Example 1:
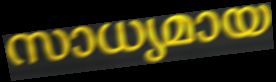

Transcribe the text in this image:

സാധ്യമായ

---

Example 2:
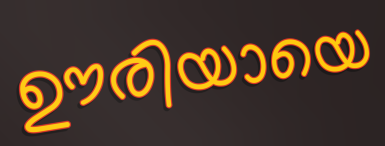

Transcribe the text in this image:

ഊരിയായെ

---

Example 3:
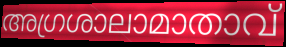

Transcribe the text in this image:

അഗ്രശാലാമാതാവ്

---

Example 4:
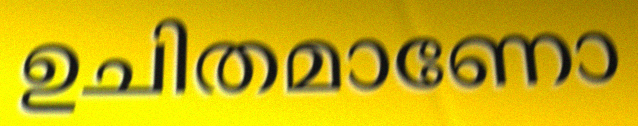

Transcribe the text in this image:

ഉചിതമാണോ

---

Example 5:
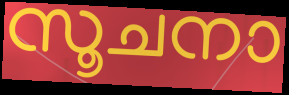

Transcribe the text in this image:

സൂചനാ